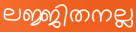
ലജ്ജിതനല്ല